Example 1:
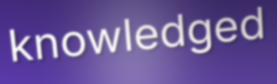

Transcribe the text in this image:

knowledged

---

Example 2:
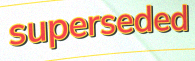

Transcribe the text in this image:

superseded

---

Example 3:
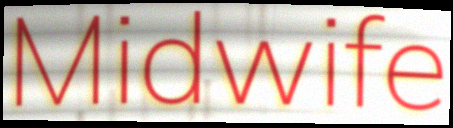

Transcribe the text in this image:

Midwife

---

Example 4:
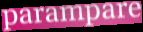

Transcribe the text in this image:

parampare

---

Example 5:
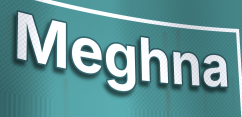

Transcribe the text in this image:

Meghna